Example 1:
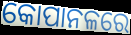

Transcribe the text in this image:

କୋପାନଳରେ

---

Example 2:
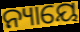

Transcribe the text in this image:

ନ୍ୟାୟେ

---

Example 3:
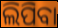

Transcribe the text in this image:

ଲିପିବା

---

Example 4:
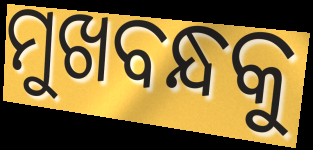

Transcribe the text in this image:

ମୁଖବନ୍ଧକୁ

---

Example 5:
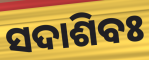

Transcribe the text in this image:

ସଦାଶିବଃ